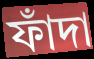
ফাঁদা